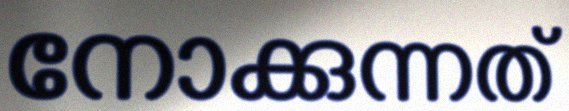
നോക്കുന്നത്